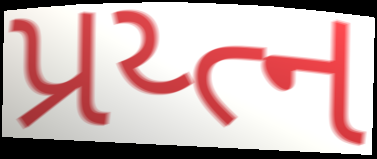
પ્રય્ત્ન